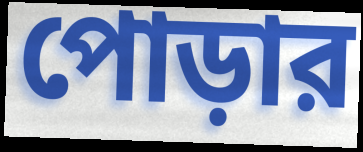
পোড়ার